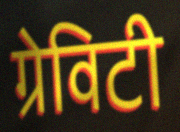
ग्रेविटी